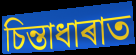
চিন্তাধাৰাত